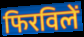
फिरविलें